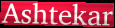
Ashtekar